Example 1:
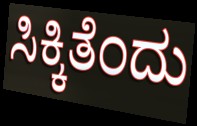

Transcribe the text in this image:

ಸಿಕ್ಕಿತೆಂದು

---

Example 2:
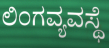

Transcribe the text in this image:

ಲಿಂಗವ್ಯವಸ್ಥೆ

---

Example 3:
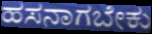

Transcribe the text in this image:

ಹಸನಾಗಬೇಕು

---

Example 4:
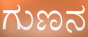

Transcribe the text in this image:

ಗುಣನ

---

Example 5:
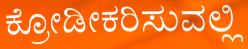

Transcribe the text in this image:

ಕ್ರೋಡೀಕರಿಸುವಲ್ಲಿ